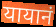
यायानं